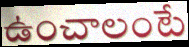
ఉంచాలంటే